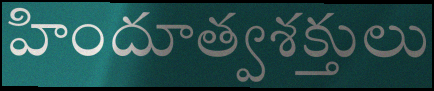
హిందూత్వశక్తులు